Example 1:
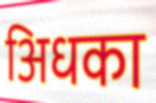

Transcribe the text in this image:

अिधका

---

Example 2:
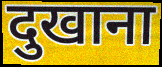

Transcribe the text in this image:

दुखाना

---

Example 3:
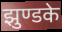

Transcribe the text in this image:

झुण्डके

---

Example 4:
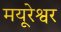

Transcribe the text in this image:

मयूरेश्वर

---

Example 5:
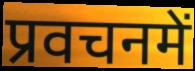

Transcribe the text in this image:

प्रवचनमें